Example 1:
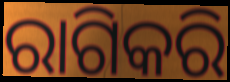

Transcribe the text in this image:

ରାଗିକରି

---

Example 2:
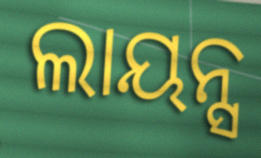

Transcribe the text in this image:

ଲାୟନ୍ସ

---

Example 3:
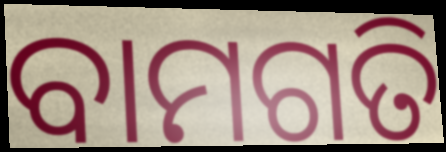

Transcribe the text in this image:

ବାମଗତି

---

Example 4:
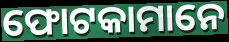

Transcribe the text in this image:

ଫୋଟକାମାନେ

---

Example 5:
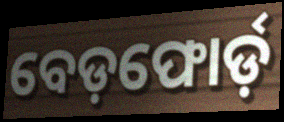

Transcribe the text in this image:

ବେଡ଼ଫୋର୍ଡ଼